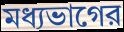
মধ্যভাগের